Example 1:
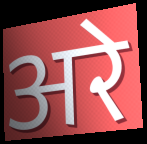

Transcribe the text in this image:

अरे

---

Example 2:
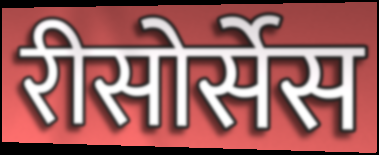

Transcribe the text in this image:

रीसोर्सेस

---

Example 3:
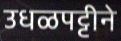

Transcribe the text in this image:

उधळपट्टीने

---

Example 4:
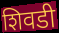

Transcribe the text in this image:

शिवडी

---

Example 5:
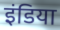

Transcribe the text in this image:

इंडिया